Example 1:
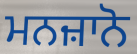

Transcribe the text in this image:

ਮਨਜ਼ਾਨੋ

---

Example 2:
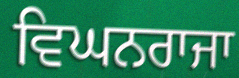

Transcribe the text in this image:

ਵਿਘਨਰਾਜਾ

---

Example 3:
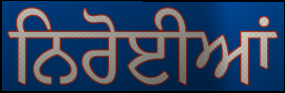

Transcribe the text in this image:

ਨਿਰੋਈਆਂ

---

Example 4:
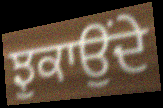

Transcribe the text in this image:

ਝੁਕਾਉੰਦੇ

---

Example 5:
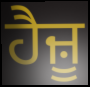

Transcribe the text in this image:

ਹੈਜ਼ੂ